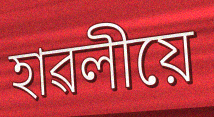
হাৱলীয়ে